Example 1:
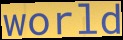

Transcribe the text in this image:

world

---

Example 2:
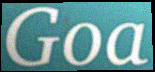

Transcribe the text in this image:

Goa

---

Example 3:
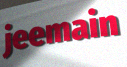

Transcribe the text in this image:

jeemain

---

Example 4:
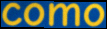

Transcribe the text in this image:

como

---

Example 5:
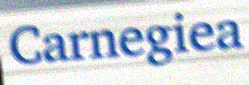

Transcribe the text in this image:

Carnegiea